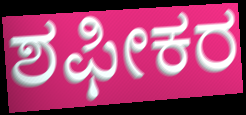
ಶಫೀಕರ